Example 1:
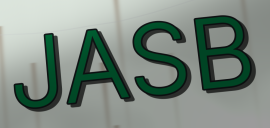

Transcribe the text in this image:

JASB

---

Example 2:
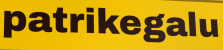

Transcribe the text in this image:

patrikegalu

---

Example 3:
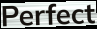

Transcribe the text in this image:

Perfect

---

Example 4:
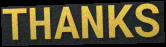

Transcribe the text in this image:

THANKS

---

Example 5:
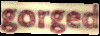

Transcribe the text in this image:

gorged